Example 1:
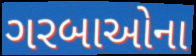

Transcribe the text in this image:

ગરબાઓના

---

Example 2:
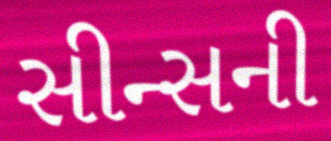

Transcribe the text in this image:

સીન્સની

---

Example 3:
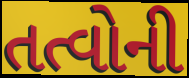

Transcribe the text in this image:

તત્વોની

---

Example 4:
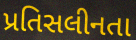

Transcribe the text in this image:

પ્રતિસલીનતા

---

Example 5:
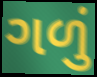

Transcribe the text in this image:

ગળું